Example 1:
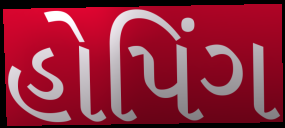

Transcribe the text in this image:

હોપિંગ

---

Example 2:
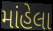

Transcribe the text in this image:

માંહેલા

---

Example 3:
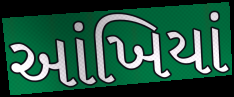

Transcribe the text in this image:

આંખિયાં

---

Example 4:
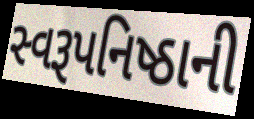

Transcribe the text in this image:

સ્વરૂપનિષ્ઠાની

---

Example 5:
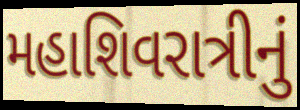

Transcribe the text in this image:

મહાશિવરાત્રીનું